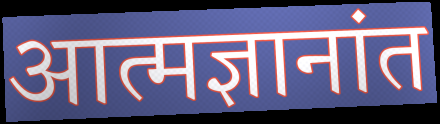
आत्मज्ञानांत